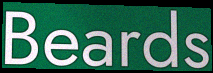
Beards